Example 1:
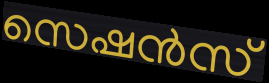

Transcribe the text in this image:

സെഷൻസ്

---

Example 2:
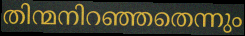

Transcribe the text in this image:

തിന്മനിറഞ്ഞതെന്നും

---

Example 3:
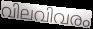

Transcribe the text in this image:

വിലവിവരം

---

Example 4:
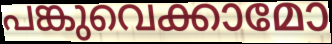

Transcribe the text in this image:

പങ്കുവെക്കാമോ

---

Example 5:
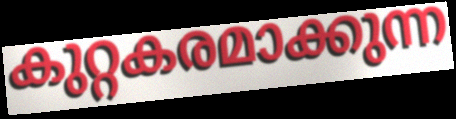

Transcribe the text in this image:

കുറ്റകരമാക്കുന്ന